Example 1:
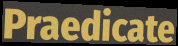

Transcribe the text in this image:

Praedicate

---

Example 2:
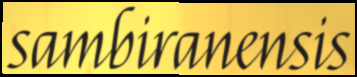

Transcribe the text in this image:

sambiranensis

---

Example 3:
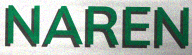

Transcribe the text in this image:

NAREN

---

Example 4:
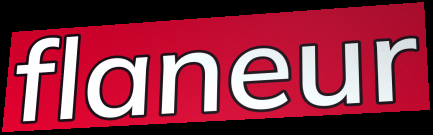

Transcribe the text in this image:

flaneur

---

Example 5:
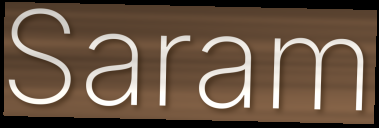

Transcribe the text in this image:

Saram